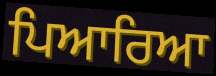
ਪਿਆਰਿਆ